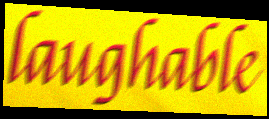
laughable